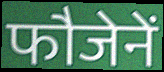
फौजेनें